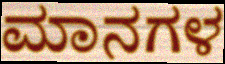
ಮಾನಗಳ